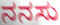
ನನಸು